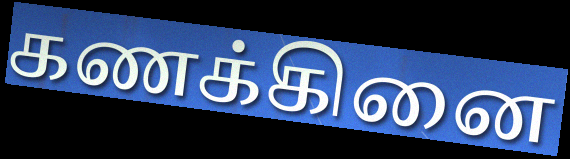
கணக்கினை